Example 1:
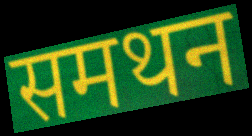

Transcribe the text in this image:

समथन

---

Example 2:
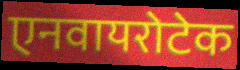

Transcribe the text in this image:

एनवायरोटेक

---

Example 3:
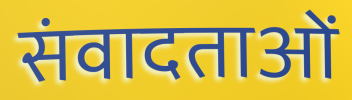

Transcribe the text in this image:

संवादताओं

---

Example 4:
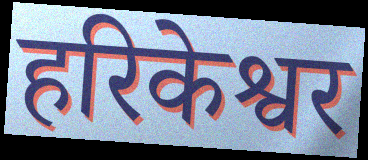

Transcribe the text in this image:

हरिकेश्वर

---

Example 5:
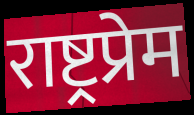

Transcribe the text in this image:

राष्ट्रप्रेम